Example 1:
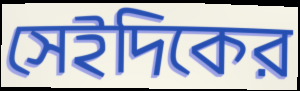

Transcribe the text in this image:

সেইদিকের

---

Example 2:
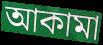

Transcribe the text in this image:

আকামা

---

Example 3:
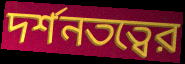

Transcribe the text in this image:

দর্শনতত্বের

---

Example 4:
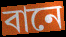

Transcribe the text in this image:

বানে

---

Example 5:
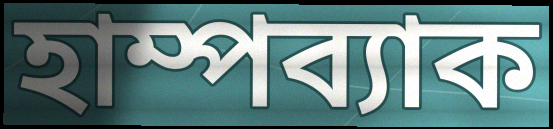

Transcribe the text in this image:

হাম্পব্যাক